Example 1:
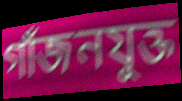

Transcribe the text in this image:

গাঁজনযুক্ত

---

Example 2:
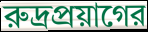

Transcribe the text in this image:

রুদ্রপ্রয়াগের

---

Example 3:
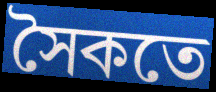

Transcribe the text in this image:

সৈকতে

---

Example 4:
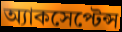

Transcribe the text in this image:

অ্যাকসেপ্টেন্স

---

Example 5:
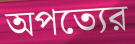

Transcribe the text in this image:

অপত্যের